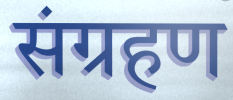
संग्रहण